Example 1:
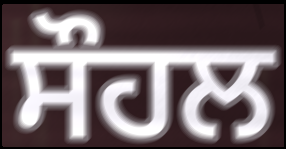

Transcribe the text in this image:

ਸੌਹਲ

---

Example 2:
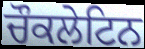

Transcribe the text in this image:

ਚੌਕਲੇਟਿਨ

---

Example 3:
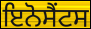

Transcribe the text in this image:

ਇਨੋਸੈਂਟਸ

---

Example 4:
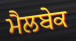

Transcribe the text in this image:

ਮੈਲਬੇਕ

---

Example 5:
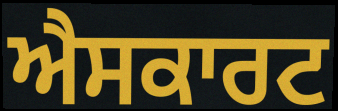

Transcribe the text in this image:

ਐਸਕਾਰਟ